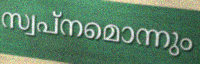
സ്വപ്നമൊന്നും